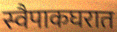
स्वैपाकघरात